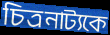
চিত্রনাট্যকে